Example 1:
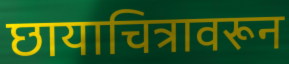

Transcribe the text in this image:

छायाचित्रावरून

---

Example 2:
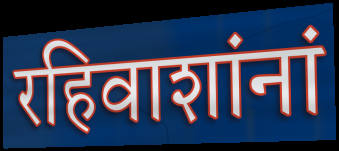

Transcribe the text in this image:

रहिवाशांनां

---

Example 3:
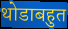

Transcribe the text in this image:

थोडाबहुत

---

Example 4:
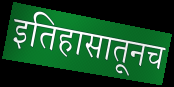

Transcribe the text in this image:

इतिहासातूनच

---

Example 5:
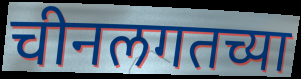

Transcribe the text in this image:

चीनलगतच्या